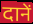
दानें